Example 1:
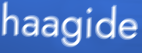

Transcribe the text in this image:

haagide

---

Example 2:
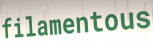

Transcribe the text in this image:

filamentous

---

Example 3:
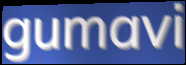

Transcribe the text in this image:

gumavi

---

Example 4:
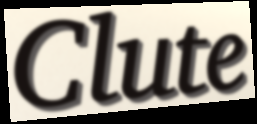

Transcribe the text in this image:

Clute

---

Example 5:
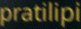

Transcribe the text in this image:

pratilipi